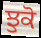
ਝੁਕੋ